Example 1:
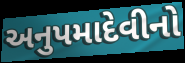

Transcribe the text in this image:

અનુપમાદેવીનો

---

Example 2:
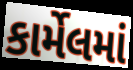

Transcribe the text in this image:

કાર્મેલમાં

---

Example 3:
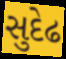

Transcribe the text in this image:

સુદેઢ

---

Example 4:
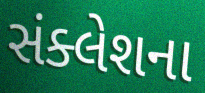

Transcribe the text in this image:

સંક્લેશના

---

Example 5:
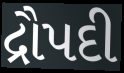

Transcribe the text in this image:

દ્રૌપદી